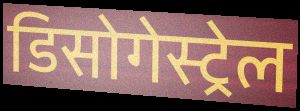
डिसोगेस्ट्रेल